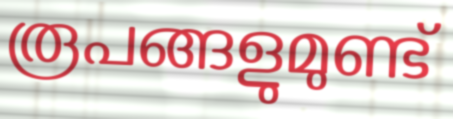
രൂപങ്ങളുമുണ്ട്